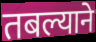
तबल्याने